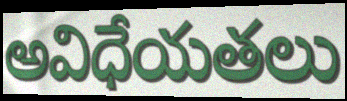
అవిధేయతలు